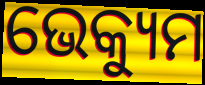
ଭେକ୍ୟୁମ